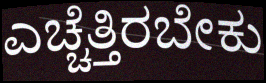
ಎಚ್ಚೆತ್ತಿರಬೇಕು